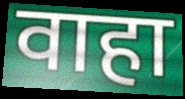
वाहा